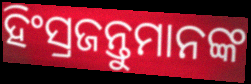
ହିଂସ୍ରଜନ୍ତୁମାନଙ୍କ